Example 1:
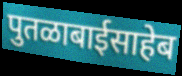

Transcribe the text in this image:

पुतळाबाईसाहेब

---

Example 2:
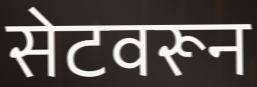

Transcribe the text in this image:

सेटवरून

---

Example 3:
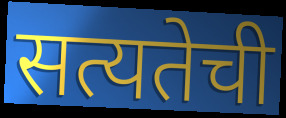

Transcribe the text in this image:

सत्यतेची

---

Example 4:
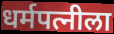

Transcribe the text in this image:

धर्मपत्नीला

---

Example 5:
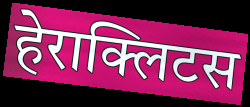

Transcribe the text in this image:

हेराक्लिटस